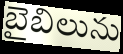
బైబిలును